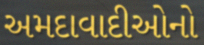
અમદાવાદીઓનો